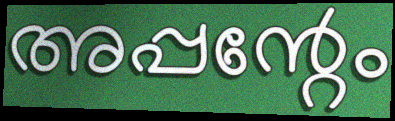
അപ്പന്റേം